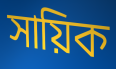
সায়িক